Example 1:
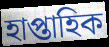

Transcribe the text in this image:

হাপ্তাহিক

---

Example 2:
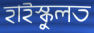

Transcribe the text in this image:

হাইস্কুলত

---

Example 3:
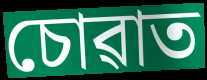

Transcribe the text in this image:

চোৱাত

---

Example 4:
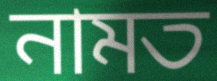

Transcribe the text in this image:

নামত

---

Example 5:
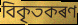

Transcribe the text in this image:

বিকৃতকৰণ